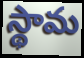
స్థామ